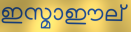
ഇസ്മാഈല്